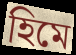
হিমে